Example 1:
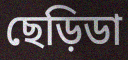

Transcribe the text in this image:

ছেড়িডা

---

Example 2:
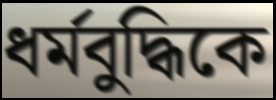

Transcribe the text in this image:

ধর্মবুদ্ধিকে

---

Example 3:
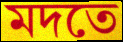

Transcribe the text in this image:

মদতে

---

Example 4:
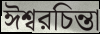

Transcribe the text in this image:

ঈশ্বরচিন্তা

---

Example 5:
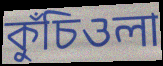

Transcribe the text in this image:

কুঁচিওলা